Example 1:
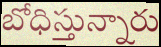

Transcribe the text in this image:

బోధిస్తున్నారు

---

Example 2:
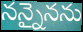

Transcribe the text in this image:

నన్నైనను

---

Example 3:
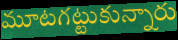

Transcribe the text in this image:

మూటగట్టుకున్నారు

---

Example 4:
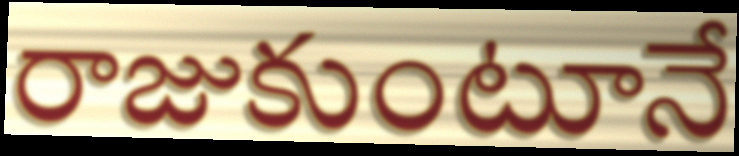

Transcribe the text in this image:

రాజుకుంటూనే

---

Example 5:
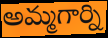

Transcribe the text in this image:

అమ్మగార్ని